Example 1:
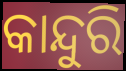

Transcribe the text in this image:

କାନ୍ଦୁରି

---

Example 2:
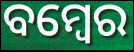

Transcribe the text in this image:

ବମ୍ୱେର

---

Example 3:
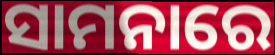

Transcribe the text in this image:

ସାମନାରେ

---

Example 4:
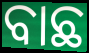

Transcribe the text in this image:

ବାଛ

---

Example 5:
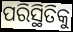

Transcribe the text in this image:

ପରିସ୍ଥିତିକୁ